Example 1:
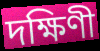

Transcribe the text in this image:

দক্ষিণী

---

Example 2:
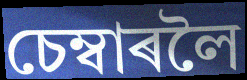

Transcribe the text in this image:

চেম্বাৰলৈ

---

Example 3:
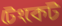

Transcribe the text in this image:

টেংকেট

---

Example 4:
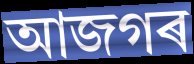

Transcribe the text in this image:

আজগৰ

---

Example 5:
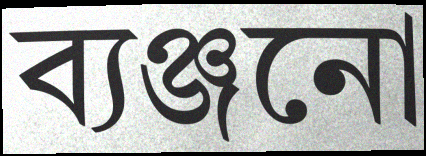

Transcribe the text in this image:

ব্যঞ্জনো